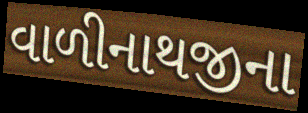
વાળીનાથજીના